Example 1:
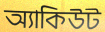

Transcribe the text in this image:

অ্যাকিউট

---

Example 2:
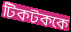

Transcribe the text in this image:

টিকটককে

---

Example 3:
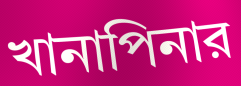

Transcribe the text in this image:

খানাপিনার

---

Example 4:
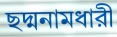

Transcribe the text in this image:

ছদ্মনামধারী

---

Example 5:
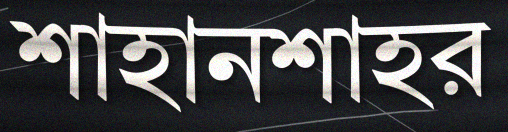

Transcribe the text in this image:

শাহানশাহর